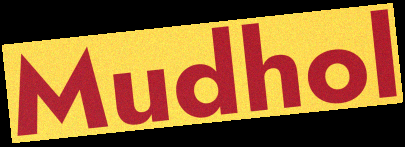
Mudhol